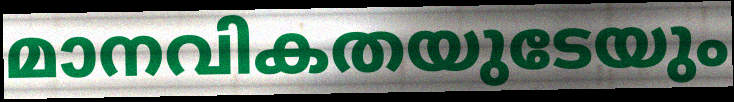
മാനവികതയുടേയും